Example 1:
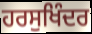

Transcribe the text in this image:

ਹਰਸੁਖਿੰਦਰ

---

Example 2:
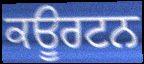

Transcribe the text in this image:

ਕਊਰਟਨ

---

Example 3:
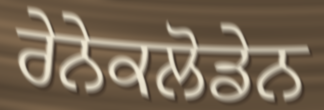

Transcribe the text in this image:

ਰੇਨੇਕਲੋਡੇਨ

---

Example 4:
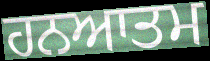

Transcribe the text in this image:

ਹਨਆਤਮ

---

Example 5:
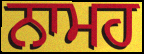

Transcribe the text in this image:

ਨਾਮਹ